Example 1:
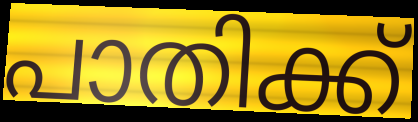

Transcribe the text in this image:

പാതിക്ക്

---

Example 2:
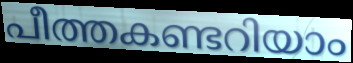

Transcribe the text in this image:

പീത്തകണ്ടറിയാം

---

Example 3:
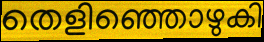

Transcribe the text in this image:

തെളിഞ്ഞൊഴുകി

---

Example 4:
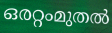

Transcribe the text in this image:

ഒരറ്റംമുതൽ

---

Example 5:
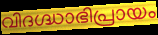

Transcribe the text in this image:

വിദഗ്ദ്ധാഭിപ്രായം